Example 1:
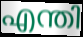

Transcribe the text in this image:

എന്തി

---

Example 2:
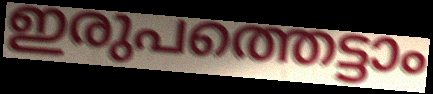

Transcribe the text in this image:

ഇരുപത്തെട്ടാം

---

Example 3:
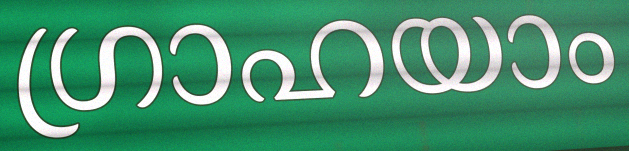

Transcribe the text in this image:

ഗ്രാഹയാം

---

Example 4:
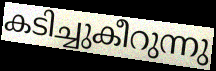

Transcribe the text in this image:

കടിച്ചുകീറുന്നു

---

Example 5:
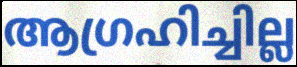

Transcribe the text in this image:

ആഗ്രഹിച്ചില്ല